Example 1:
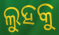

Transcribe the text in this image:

ଲୁହକୁ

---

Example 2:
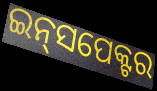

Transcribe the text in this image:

ଇନ୍‌ସପେକ୍ଟର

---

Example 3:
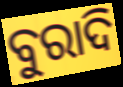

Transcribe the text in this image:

ବୁରାଦି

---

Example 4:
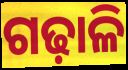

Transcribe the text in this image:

ଗଢ଼ାଳି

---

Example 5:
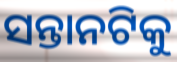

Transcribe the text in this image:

ସନ୍ତାନଟିକୁ